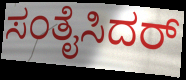
ಸಂತೈಸಿದರ್